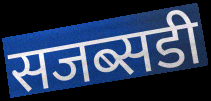
सजब्सडी